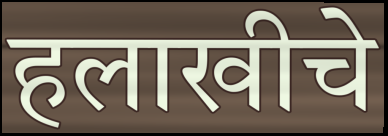
हलाखीचे